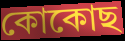
কোকোছ